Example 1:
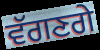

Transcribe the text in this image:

ਵੱਗਣਗੇ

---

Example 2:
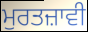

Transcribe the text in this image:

ਮੁਰਤਜ਼ਾਵੀ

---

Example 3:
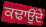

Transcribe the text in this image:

ਕਢਾਉਂਦੇ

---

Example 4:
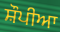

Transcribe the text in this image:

ਸ਼ੌਪੀਆ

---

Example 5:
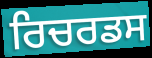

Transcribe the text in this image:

ਰਿਚਰਡਸ